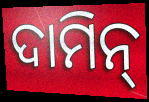
ଦାମିନ୍